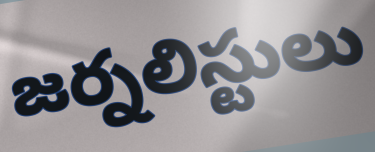
జర్నలిస్టులు